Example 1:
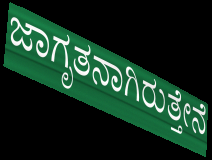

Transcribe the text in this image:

ಜಾಗೃತನಾಗಿರುತ್ತೇನೆ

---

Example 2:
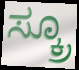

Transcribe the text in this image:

ಸ್ಕ್ರೂ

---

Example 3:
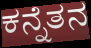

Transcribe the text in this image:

ಕನ್ನೆತನ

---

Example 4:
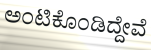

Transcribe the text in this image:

ಅಂಟಿಕೊಂಡಿದ್ದೇವೆ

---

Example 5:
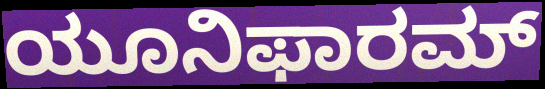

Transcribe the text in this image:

ಯೂನಿಫಾರಮ್